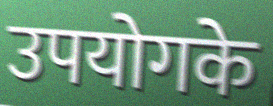
उपयोगके